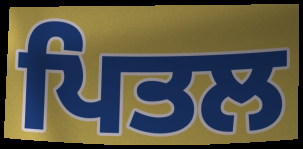
ਪਿਤਲ